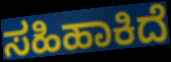
ಸಹಿಹಾಕಿದೆ